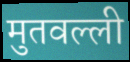
मुतवल्ली